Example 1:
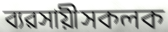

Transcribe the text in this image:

ব্যৱসায়ীসকলক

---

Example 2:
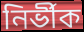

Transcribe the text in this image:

নিৰ্ভীক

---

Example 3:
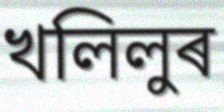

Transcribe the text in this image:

খলিলুৰ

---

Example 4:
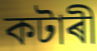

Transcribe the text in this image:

কটাৰী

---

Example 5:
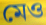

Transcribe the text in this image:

মেও